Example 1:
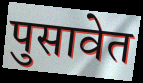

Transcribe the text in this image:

पुसावेत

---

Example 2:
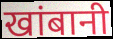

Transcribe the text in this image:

खांबानी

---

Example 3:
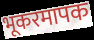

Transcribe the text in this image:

भूकरमापक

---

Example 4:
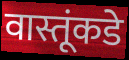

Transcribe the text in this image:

वास्तूंकडे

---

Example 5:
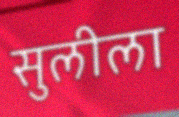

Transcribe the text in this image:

सुलीला